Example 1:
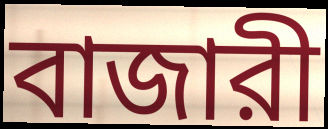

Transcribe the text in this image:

বাজারী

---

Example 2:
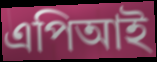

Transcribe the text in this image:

এপিআই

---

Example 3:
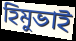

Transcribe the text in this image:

হিমুভাই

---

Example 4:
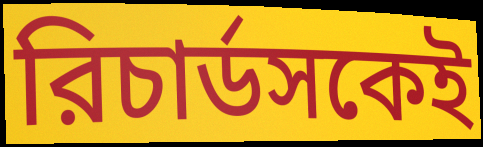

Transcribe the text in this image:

রিচার্ডসকেই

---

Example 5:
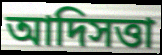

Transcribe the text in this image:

আদিসত্তা